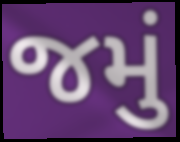
જમું